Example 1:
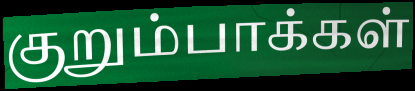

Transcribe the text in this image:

குறும்பாக்கள்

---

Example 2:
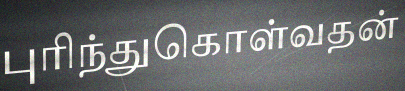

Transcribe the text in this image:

புரிந்துகொள்வதன்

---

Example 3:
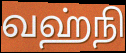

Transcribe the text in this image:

வஹ்நி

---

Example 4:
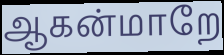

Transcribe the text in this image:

ஆகன்மாறே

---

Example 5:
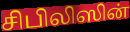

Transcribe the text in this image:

சிபிலிஸின்